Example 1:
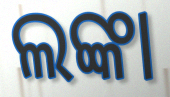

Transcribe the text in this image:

ଲଙ୍କା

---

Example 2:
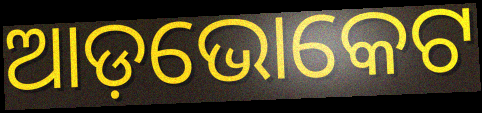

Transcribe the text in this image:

ଆଡ଼ଭୋକେଟ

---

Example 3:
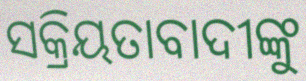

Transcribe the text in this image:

ସକ୍ରିୟତାବାଦୀଙ୍କୁ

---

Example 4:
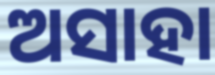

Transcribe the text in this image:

ଅସାହା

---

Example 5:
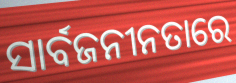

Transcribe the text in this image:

ସାର୍ବଜନୀନତାରେ